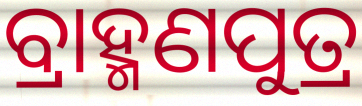
ବ୍ରାହ୍ମଣପୁତ୍ର